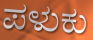
ಪಳುಕು